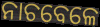
ନାଚବେଳେ